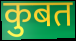
कुबत